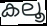
കലൂ